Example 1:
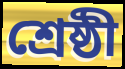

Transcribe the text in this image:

শ্রেষ্ঠী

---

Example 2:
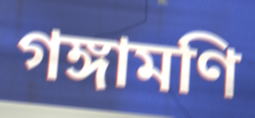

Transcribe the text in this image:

গঙ্গামণি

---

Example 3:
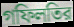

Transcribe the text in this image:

গফিলতির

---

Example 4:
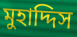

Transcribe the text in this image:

মুহাদ্দিস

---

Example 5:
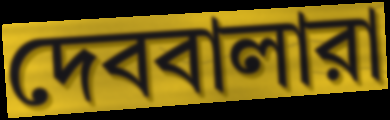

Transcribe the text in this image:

দেববালারা